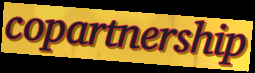
copartnership